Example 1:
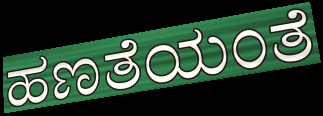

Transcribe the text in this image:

ಹಣತೆಯಂತೆ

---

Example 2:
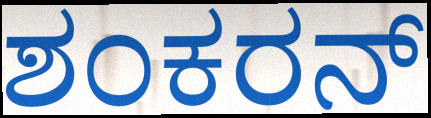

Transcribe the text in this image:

ಶಂಕರನ್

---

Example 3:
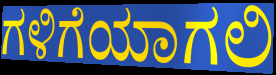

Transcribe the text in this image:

ಗಳಿಗೆಯಾಗಲಿ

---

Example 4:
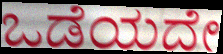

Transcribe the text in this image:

ಒಡೆಯದೇ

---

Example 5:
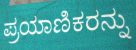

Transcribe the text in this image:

ಪ್ರಯಾಣಿಕರನ್ನು